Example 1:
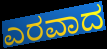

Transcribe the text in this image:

ಎರವಾದ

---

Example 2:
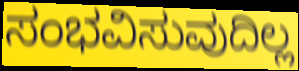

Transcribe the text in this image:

ಸಂಭವಿಸುವುದಿಲ್ಲ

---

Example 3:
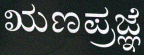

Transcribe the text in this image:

ಋಣಪ್ರಜ್ಞೆ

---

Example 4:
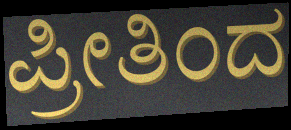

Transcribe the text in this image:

ಪ್ರೀತಿಂದ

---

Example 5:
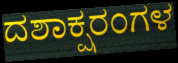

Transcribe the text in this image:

ದಶಾಕ್ಷರಂಗಳ